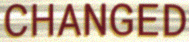
CHANGED